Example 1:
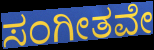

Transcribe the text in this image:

ಸಂಗೀತವೇ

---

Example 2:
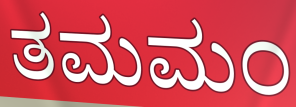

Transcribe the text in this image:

ತಮಮಂ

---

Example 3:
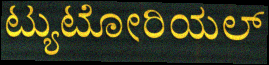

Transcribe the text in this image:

ಟ್ಯುಟೋರಿಯಲ್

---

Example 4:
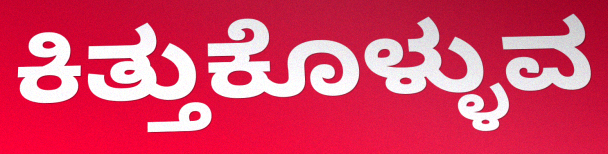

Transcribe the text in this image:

ಕಿತ್ತುಕೊಳ್ಳುವ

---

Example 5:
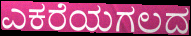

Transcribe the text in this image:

ಎಕರೆಯಗಲದ